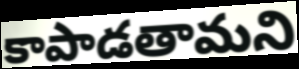
కాపాడతామని